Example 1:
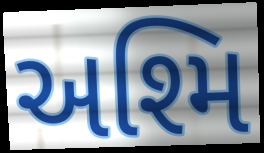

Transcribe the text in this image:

અશ્મિ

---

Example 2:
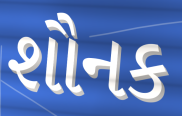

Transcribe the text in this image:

શૌનક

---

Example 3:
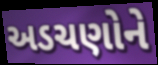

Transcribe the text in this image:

અડચણોને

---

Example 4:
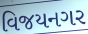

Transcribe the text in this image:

વિજયનગર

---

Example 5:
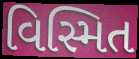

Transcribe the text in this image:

વિસ્મિત